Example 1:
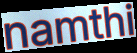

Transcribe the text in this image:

namthi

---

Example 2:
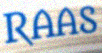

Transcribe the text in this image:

RAAS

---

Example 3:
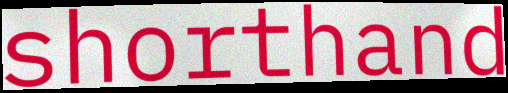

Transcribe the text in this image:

shorthand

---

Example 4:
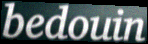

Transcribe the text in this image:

bedouin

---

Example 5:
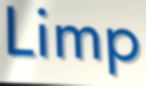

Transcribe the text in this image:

Limp